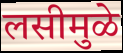
लसीमुळे